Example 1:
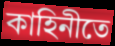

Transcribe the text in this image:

কাহিনীতে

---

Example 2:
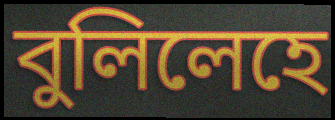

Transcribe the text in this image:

বুলিলেহে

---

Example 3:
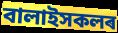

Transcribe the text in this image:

বালাইসকলৰ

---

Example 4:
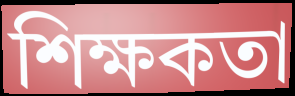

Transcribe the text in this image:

শিক্ষকতা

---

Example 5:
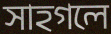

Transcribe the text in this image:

সাহগলে